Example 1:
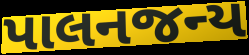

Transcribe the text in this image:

પાલનજન્ય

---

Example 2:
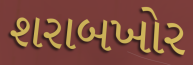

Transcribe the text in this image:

શરાબખોર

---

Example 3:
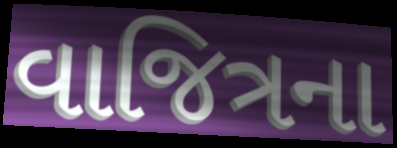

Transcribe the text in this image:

વાજિત્રના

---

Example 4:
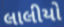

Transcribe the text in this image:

લાલીયો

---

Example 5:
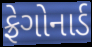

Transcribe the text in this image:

ફ્રેગોનાર્ડ